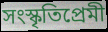
সংস্কৃতিপ্রেমী